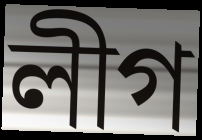
লীগ